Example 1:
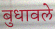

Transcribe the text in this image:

बुधावले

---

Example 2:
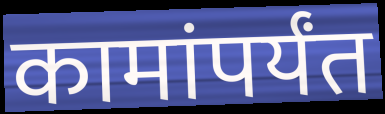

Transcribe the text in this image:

कामांपर्यंत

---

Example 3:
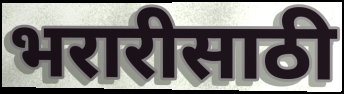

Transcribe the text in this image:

भरारीसाठी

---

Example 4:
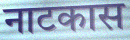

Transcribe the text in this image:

नाटकास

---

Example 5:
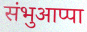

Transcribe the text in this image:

संभुआप्पा